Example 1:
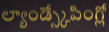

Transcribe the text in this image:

ల్యాండ్స్కేపింగ్లో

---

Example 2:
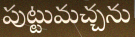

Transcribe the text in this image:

పుట్టుమచ్చను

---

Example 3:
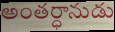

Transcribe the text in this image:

అంతర్ధానుడు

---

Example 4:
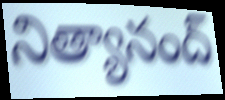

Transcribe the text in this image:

నిత్యానంద్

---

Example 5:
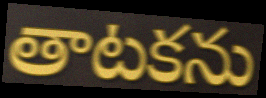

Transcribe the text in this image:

తాటకను